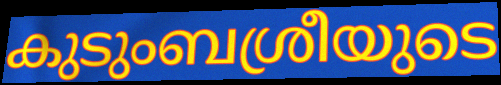
കുടുംബശ്രീയുടെ